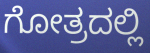
ಗೋತ್ರದಲ್ಲಿ